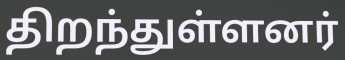
திறந்துள்ளனர்